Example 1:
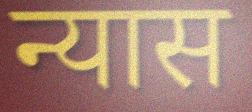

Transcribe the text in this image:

न्यास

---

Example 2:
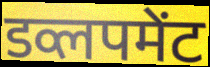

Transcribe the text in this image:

डव्लपमेंट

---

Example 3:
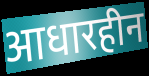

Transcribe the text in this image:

आधारहीन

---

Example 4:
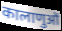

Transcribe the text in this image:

कालाणुओं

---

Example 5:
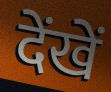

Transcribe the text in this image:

देंखें